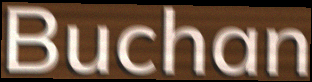
Buchan